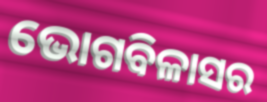
ଭୋଗବିଳାସର